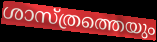
ശാസ്ത്രത്തെയും